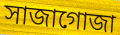
সাজাগোজা